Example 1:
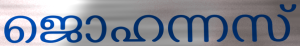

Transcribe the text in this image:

ജൊഹന്നസ്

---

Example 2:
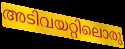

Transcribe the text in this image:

അടിവയറ്റിലൊരു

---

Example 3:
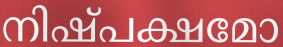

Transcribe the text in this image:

നിഷ്പക്ഷമോ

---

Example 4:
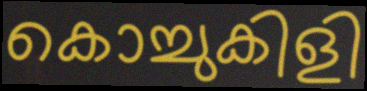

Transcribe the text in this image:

കൊച്ചുകിളി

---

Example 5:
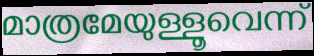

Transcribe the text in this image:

മാത്രമേയുള്ളൂവെന്ന്